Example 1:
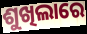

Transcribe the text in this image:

ଶୁଖିଲାରେ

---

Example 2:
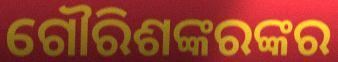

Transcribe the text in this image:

ଗୌରିଶଙ୍କରଙ୍କର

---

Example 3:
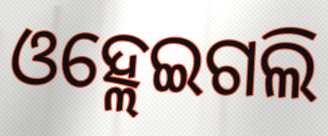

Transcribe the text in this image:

ଓହ୍ଲେଇଗଲି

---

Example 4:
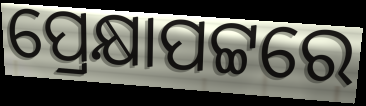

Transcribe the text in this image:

ପ୍ରେକ୍ଷାପଟ୍ଟରେ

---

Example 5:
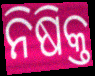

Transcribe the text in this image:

ନିଷିକ୍ତ